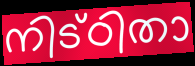
നിട്ഠിതാ